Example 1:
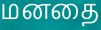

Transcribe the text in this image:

மனதை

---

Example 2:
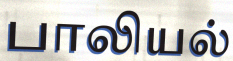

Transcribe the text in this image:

பாலியல்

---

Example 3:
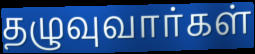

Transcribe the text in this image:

தழுவுவார்கள்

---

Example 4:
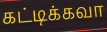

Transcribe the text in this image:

கட்டிக்கவா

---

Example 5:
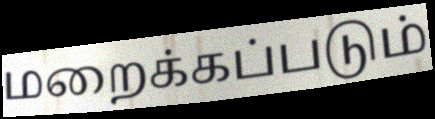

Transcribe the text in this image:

மறைக்கப்படும்